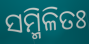
ସମ୍ମିଳିତଃ